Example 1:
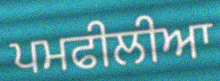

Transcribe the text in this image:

ਪਮਫੀਲੀਆ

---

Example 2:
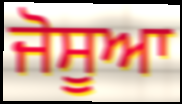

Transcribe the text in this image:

ਜੋਸੂਆ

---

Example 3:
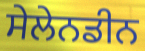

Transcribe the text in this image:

ਸੇਲੇਨਡੀਨ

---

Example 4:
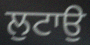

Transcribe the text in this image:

ਲੁਟਾਉ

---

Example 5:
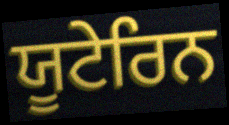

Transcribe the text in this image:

ਯੂਟੇਰਿਨ